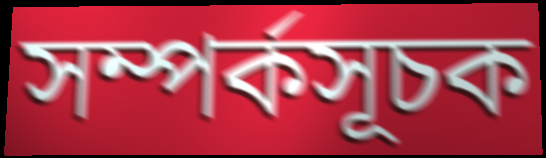
সম্পর্কসূচক